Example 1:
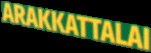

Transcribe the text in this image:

ARAKKATTALAI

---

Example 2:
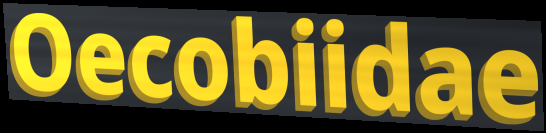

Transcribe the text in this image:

Oecobiidae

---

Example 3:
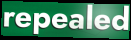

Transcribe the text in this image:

repealed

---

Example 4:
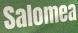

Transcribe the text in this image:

Salomea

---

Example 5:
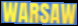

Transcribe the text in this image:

WARSAW